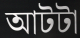
আটটা